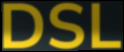
DSL